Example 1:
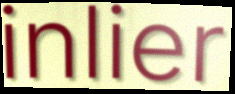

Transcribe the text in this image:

inlier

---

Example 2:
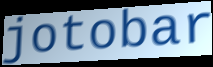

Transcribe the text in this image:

jotobar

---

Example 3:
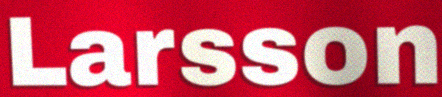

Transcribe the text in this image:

Larsson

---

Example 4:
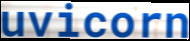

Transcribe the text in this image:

uvicorn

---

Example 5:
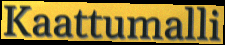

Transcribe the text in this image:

Kaattumalli